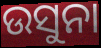
ଉସୁନା